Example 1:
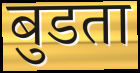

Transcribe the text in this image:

बुडता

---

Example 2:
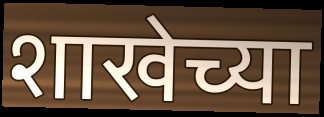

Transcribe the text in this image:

शाखेच्या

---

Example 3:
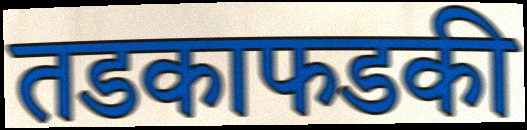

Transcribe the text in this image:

तडकाफडकी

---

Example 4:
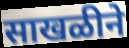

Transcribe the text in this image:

साखळीने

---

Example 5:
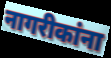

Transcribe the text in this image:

नागरीकांना